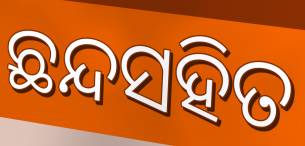
ଛନ୍ଦସହିତ